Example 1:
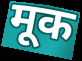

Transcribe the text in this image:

मूक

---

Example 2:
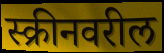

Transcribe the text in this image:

स्क्रीनवरील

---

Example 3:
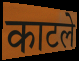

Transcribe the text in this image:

काटले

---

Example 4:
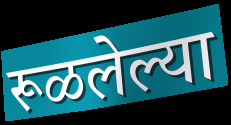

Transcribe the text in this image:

रूळलेल्या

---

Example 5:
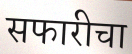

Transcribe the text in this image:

सफारीचा